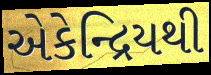
એકેન્દ્રિયથી